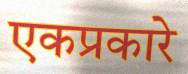
एकप्रकारे